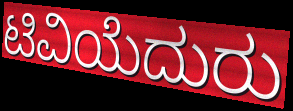
ಟಿವಿಯೆದುರು